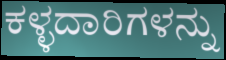
ಕಳ್ಳದಾರಿಗಳನ್ನು